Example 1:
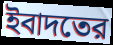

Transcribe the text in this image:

ইবাদতের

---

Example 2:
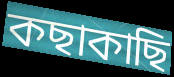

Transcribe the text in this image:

কছাকাছি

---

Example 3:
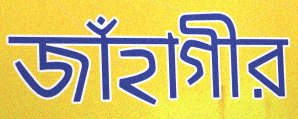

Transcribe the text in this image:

জাঁহাগীর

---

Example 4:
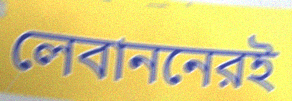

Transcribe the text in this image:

লেবাননেরই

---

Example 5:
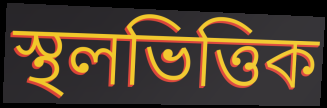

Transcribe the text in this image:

স্থলভিত্তিক